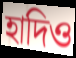
হাদিও